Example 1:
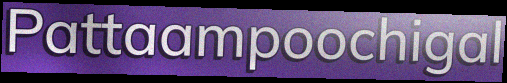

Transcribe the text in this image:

Pattaampoochigal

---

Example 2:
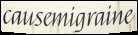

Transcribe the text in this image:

causemigraine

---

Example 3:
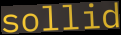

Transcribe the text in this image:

sollid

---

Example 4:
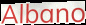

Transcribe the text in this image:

Albano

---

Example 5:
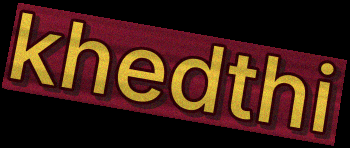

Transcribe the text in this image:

khedthi